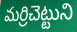
మర్రిచెట్టుని